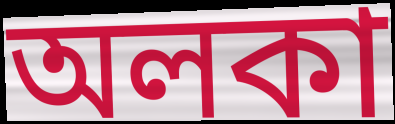
অলকা